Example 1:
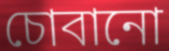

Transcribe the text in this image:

চোবানো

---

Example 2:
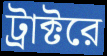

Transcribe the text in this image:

ট্রাক্টরে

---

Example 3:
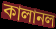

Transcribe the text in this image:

কালানল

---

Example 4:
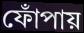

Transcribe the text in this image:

ফোঁপায়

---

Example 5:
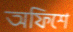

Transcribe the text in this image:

অফিশে